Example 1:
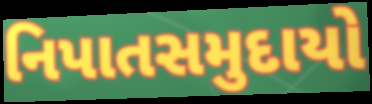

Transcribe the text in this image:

નિપાતસમુદાયો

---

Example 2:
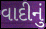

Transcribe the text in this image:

વાદીનું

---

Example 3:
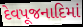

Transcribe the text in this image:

દેવપૂજનાદિમાં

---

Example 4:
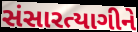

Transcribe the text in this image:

સંસારત્યાગીને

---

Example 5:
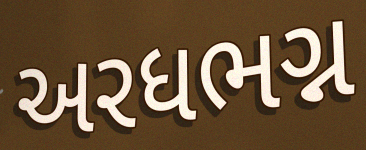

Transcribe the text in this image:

અરધભગ્ન